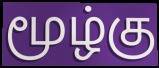
மூழ்கு